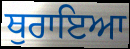
ਥੁਰਾਇਆ